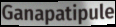
Ganapatipule